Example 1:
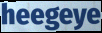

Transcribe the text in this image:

heegeye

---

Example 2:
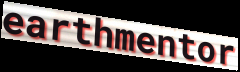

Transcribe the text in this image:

earthmentor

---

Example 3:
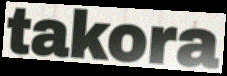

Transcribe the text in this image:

takora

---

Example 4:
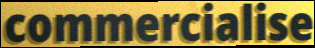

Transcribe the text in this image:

commercialise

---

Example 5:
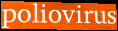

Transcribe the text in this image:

poliovirus